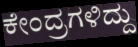
ಕೇಂದ್ರಗಳಿದ್ದು